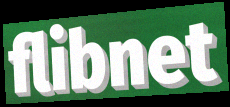
flibnet